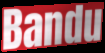
Bandu